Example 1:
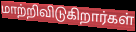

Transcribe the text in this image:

மாற்றிவிடுகிறார்கள்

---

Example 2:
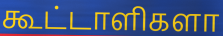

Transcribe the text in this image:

கூட்டாளிகளா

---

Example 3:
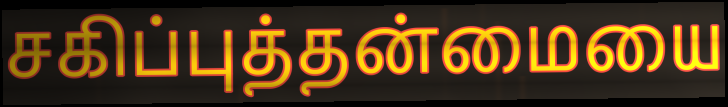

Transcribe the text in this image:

சகிப்புத்தன்மையை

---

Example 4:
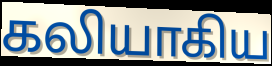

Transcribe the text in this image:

கலியாகிய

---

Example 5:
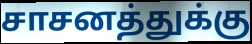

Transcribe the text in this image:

சாசனத்துக்கு